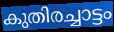
കുതിരച്ചാട്ടം